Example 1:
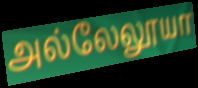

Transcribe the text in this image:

அல்லேலூயா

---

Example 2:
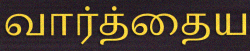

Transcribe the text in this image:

வார்த்தைய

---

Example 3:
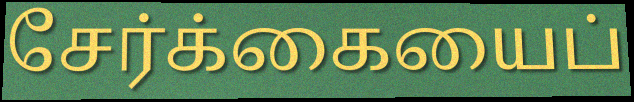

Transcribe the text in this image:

சேர்க்கையைப்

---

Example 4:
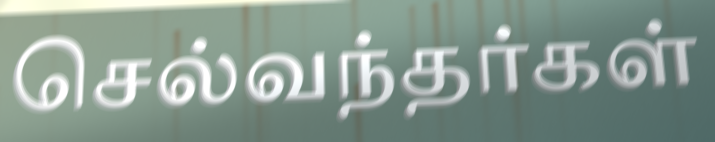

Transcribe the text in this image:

செல்வந்தர்கள்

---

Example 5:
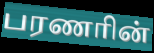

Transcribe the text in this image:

பரணரின்